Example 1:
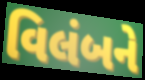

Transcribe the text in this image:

વિલંબને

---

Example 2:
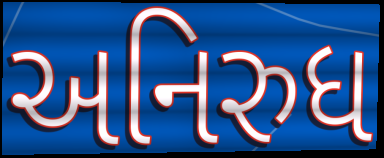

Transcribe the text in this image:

અનિરુધ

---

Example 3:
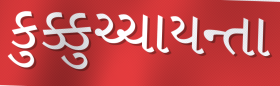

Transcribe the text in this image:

કુક્કુચ્ચાયન્તા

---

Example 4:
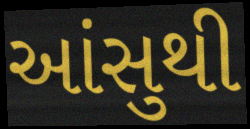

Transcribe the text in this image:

આંસુથી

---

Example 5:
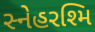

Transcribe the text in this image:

સ્નેહરશ્મિ